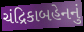
ચંદ્રિકાબહેનનું